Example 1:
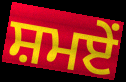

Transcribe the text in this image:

ਸ਼ਮਏਂ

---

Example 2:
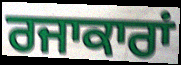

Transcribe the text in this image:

ਰਜਾਕਾਰਾਂ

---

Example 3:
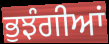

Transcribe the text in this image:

ਭੁਝੰਗੀਆਂ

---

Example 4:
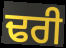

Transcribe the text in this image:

ਢਰੀ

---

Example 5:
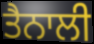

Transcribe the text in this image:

ਤੈਨਾਲੀ